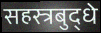
सहस्त्रबुद्धे